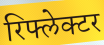
रिफ्लेक्टर